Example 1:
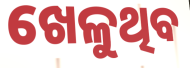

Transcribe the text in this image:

ଖେଳୁଥିବ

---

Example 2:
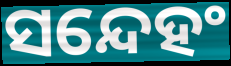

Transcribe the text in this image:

ସନ୍ଦେହଂ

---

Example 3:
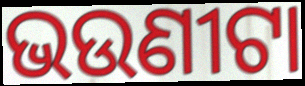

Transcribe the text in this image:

ଭଉଣୀଟା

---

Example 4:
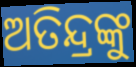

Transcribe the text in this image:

ଅତିନ୍ଦ୍ରଙ୍କୁ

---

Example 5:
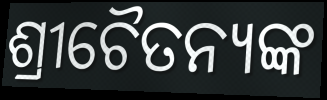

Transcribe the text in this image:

ଶ୍ରୀଚୈତନ୍ୟଙ୍କ